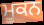
ਮੂਕਨ